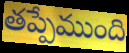
తప్పేముంది